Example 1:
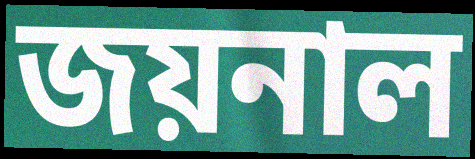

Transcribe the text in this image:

জয়নাল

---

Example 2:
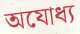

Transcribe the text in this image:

অযোধ্য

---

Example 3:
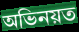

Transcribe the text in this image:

অভিনয়ত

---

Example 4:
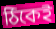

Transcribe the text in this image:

ঠিকেই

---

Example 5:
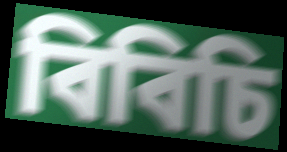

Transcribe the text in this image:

বিবিচি